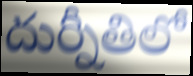
దుర్నీతిలో